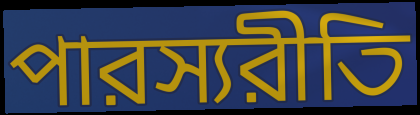
পারস্যরীতি